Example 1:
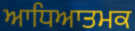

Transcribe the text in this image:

ਆਧਿਆਤਮਕ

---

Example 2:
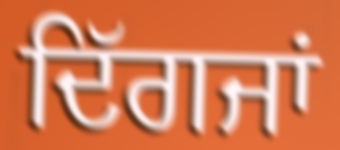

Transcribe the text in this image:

ਦਿੱਗਜਾਂ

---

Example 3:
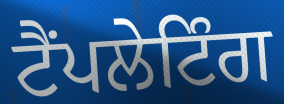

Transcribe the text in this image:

ਟੈਂਪਲੇਟਿੰਗ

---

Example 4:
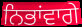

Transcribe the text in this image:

ਨਿਭਾਂਵਾਗੇ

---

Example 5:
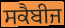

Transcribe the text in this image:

ਸਕੈਬੀਜ